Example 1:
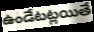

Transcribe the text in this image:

ఉండేటట్లయితే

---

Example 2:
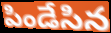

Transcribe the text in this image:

పిండేసిన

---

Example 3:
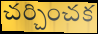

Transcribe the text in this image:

చర్చించక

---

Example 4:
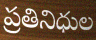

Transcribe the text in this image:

ప్రతినిధుల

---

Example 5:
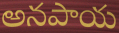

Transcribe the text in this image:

అనపాయ